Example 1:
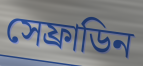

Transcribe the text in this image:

সেফ্রাডিন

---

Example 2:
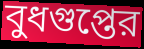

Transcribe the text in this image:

বুধগুপ্তের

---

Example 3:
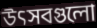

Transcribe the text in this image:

উৎসবগুলো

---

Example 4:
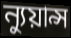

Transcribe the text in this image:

ন্যুয়ান্স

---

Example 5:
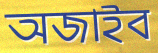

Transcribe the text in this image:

অজাইব